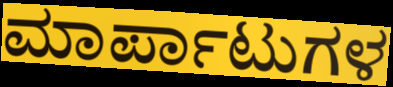
ಮಾರ್ಪಾಟುಗಳ